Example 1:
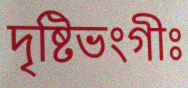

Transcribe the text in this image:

দৃষ্টিভংগীঃ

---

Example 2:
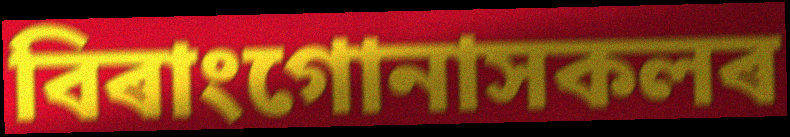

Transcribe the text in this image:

বিৰাংগোনাসকলৰ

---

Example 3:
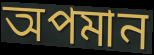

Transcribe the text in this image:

অপমান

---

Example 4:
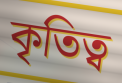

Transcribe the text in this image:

কৃতিত্ব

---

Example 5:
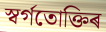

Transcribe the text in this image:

স্বৰ্গতোক্তিৰ